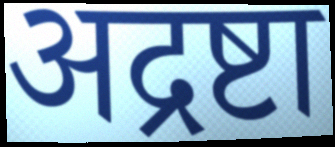
अद्रष्टा